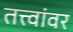
तत्त्वांवर